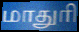
மாதுரி